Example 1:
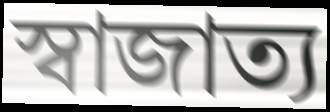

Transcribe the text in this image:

স্বাজাত্য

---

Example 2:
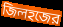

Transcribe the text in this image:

জিলহজের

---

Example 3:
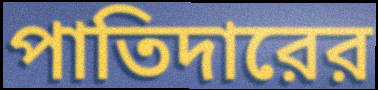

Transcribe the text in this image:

পাতিদারের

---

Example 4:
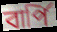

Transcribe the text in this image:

বার্পি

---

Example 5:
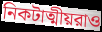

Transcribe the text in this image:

নিকটাত্মীয়রাও